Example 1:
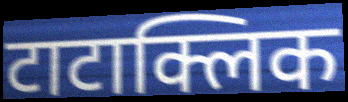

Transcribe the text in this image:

टाटाक्लिक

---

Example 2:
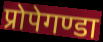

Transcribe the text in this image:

प्रोपेगण्डा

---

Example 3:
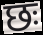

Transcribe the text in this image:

छः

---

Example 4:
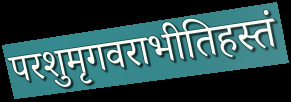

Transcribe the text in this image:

परशुमृगवराभीतिहस्तं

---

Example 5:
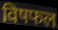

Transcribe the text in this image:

विषफल